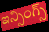
ఇన్సింగ్స్